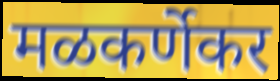
मळकर्णेकर